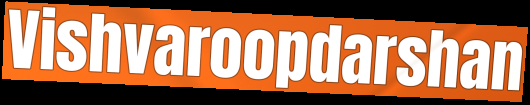
Vishvaroopdarshan